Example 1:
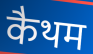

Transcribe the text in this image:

कैथम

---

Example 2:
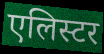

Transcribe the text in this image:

एलिस्टर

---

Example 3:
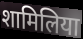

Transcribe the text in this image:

शामिलिया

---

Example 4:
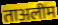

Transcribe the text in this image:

ताअलीम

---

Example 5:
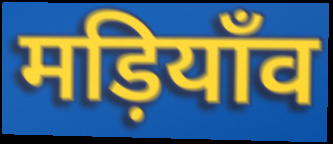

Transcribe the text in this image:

मड़ियाँव